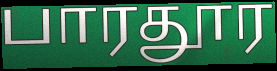
பாரதூர